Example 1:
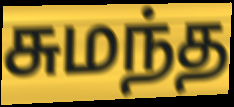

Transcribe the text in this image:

சுமந்த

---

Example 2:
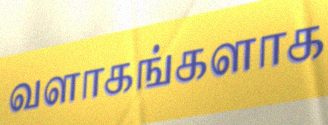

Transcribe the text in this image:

வளாகங்களாக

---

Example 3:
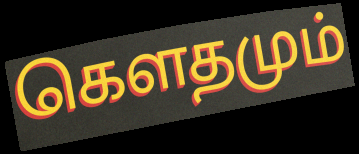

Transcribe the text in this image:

கெளதமும்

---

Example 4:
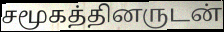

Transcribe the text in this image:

சமூகத்தினருடன்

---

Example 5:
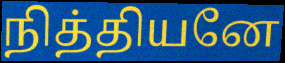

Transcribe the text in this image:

நித்தியனே